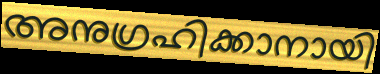
അനുഗ്രഹിക്കാനായി